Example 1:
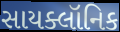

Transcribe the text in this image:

સાયક્લૉનિક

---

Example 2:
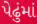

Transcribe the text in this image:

પેઢુંમાં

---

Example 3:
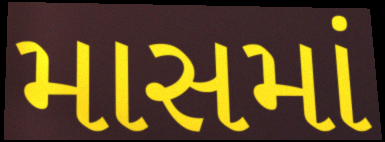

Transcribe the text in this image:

માસમાં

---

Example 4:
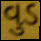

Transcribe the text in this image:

વુડ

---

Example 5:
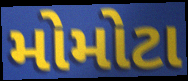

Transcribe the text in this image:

મોમોટા